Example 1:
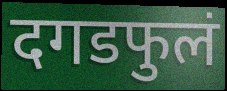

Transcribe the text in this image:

दगडफुलं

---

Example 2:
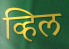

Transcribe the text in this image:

व्हिल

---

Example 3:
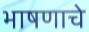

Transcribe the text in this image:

भाषणाचे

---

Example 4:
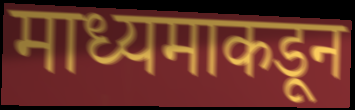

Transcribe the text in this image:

माध्यमाकडून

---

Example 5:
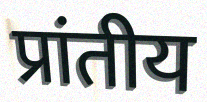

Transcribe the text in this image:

प्रांतीय